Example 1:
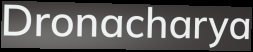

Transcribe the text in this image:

Dronacharya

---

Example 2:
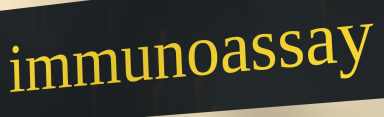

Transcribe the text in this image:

immunoassay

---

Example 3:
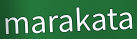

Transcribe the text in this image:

marakata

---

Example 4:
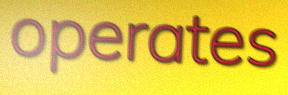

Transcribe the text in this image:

operates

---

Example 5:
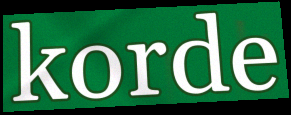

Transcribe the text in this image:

korde